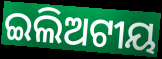
ଇଲିଅଟୀୟ